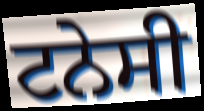
ਟਨੇਸੀ